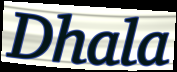
Dhala